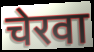
चेरवा